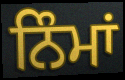
ਨਿੰਮਾਂ